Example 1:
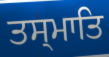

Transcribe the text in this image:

ਤਸ੍ਮਾਤਿ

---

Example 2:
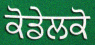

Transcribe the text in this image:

ਕੋਡੇਲਕੋ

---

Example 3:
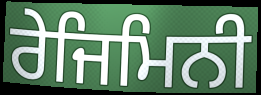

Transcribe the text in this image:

ਰੇਜਿਮਿਨੀ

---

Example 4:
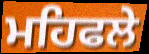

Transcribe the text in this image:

ਮਹਿਫਲੇ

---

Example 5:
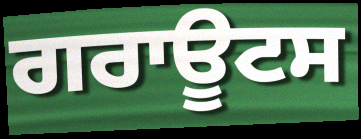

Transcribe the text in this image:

ਗਰਾਊਟਸ